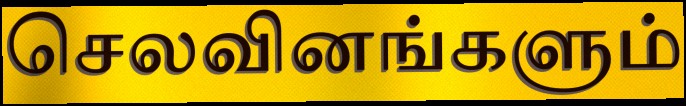
செலவினங்களும்